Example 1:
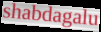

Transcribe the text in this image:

shabdagalu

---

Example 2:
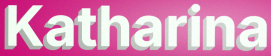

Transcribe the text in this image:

Katharina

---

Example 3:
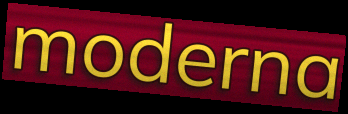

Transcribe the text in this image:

moderna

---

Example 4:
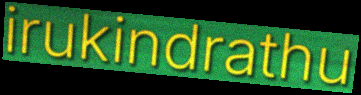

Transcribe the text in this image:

irukindrathu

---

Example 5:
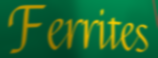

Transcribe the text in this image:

Ferrites